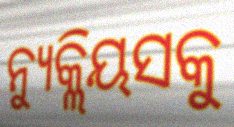
ନ୍ୟୁକ୍ଲିୟସକୁ